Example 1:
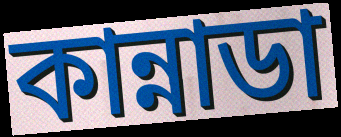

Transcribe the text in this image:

কান্নাডা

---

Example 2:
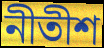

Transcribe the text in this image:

নীতীশ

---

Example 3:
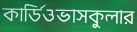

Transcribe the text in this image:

কার্ডিওভাসকুলার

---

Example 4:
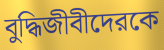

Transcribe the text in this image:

বুদ্ধিজীবীদেরকে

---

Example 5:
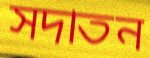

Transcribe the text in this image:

সদাতন